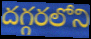
దగ్గరలోని